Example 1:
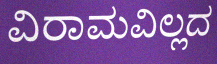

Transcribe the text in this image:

ವಿರಾಮವಿಲ್ಲದ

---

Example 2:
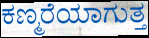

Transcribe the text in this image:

ಕಣ್ಮರೆಯಾಗುತ್ತ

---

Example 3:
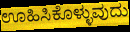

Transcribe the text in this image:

ಊಹಿಸಿಕೊಳ್ಳುವುದು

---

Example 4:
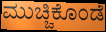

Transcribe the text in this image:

ಮುಚ್ಚಿಕೊಂಡೆ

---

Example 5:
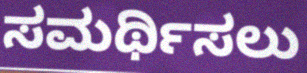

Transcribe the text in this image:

ಸಮರ್ಥಿಸಲು